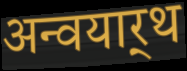
अन्वयार्थ